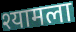
श्यामला